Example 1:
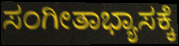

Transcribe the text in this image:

ಸಂಗೀತಾಭ್ಯಾಸಕ್ಕೆ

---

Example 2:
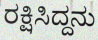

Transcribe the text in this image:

ರಕ್ಷಿಸಿದ್ದನು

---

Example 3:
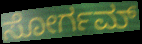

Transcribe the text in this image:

ಸೋರ್ಗಮ್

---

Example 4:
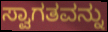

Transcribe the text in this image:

ಸ್ವಾಗತವನ್ನು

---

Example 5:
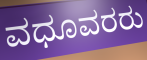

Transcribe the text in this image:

ವಧೂವರರು